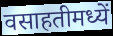
वसाहतीमध्यें